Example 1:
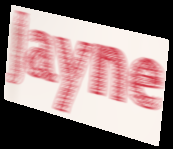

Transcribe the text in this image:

Jayne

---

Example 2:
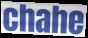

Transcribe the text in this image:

chahe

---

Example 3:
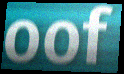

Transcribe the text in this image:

oof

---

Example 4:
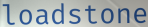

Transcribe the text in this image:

loadstone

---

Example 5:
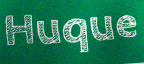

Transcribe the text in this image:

Huque